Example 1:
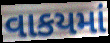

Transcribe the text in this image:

વાકયમાં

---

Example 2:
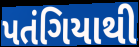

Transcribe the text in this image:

પતંગિયાથી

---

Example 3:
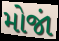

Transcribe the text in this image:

મોજાં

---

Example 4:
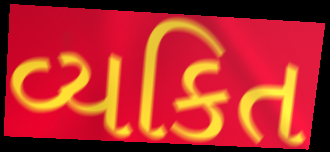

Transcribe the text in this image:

વ્યકિત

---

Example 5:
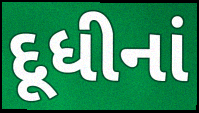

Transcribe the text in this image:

દૂધીનાં